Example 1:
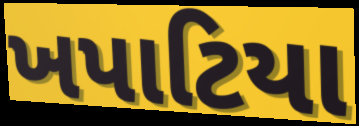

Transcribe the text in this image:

ખપાટિયા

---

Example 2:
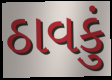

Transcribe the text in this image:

ઠાવકું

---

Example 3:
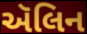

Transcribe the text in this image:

ઍલિન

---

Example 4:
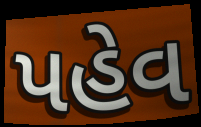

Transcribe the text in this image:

પહેવ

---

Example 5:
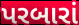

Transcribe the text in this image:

પરબારાં